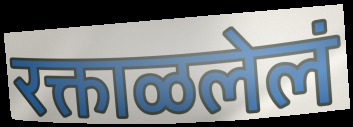
रक्ताळलेलं